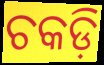
ଚକଡ଼ି